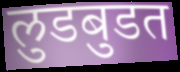
लुडबुडत